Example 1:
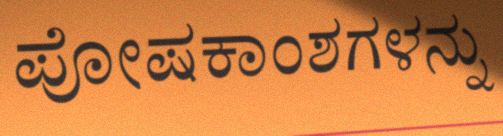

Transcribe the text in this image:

ಪೋಷಕಾಂಶಗಳನ್ನು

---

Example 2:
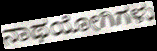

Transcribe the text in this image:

ನಾಥಯೋಗಿಗಳು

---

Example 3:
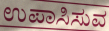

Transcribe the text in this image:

ಉಪಾಸಿಸುವ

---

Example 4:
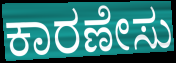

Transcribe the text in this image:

ಕಾರಣೇಸು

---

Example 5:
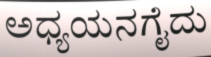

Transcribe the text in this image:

ಅಧ್ಯಯನಗೈದು